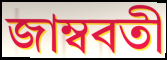
জাম্ববতী